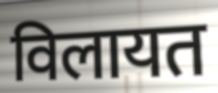
विलायत